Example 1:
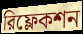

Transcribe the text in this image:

রিফ্লেকশন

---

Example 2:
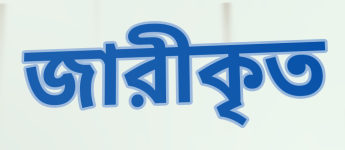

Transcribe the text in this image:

জারীকৃত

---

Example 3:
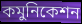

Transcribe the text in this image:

কমুনিকেশন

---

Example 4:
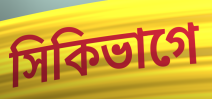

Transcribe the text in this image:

সিকিভাগে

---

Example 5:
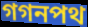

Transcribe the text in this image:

গগনপথ